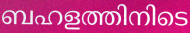
ബഹളത്തിനിടെ